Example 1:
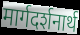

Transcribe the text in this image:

मार्गदर्शनार्थ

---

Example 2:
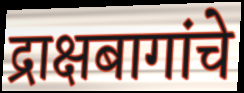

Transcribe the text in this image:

द्राक्षबागांचे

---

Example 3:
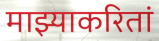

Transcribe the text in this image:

माझ्याकरितां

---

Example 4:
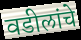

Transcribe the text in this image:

वडीलांचे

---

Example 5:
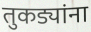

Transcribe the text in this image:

तुकड्यांना